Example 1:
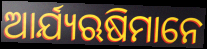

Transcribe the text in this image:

ଆର୍ଯ୍ୟଋଷିମାନେ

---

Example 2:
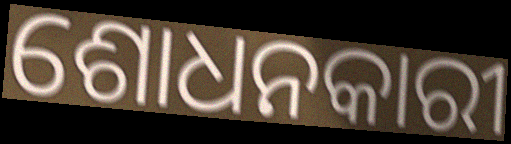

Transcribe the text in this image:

ଶୋଧନକାରୀ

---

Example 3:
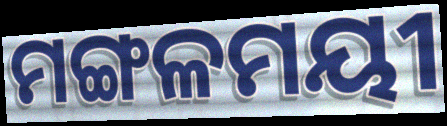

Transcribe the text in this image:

ମଙ୍ଗଳମୟୀ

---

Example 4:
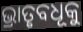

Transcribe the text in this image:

ଭ୍ରାତୃବଧୂକୁ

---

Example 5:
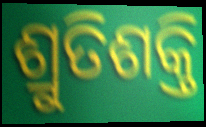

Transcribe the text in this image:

ଶ୍ରୁତିଶକ୍ତି